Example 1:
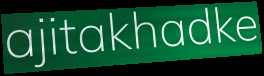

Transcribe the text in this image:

ajitakhadke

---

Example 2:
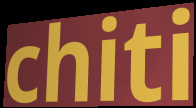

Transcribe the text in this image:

chiti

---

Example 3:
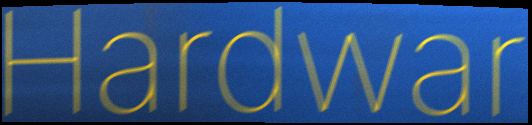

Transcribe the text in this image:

Hardwar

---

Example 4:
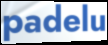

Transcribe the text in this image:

padelu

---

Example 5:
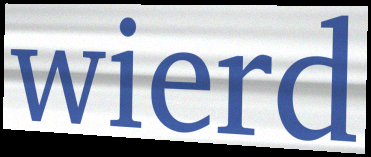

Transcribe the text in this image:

wierd